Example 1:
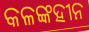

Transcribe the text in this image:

କଳଙ୍କହୀନ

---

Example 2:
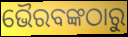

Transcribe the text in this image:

ଭୈରବଙ୍କଠାରୁ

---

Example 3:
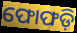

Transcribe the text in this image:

ଫୋଫଡ଼ି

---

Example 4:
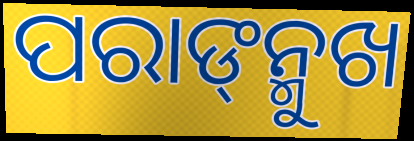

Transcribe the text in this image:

ପରାଙ୍‌ନ୍ମୁଖ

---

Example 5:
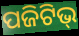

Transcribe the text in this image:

ପଜିଟିଭ୍